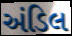
અંડિલ